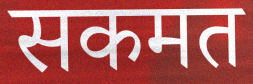
सकमत